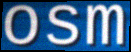
osm